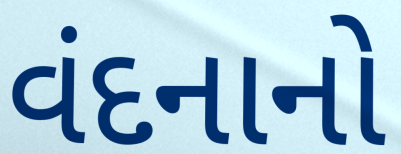
વંદનાનો